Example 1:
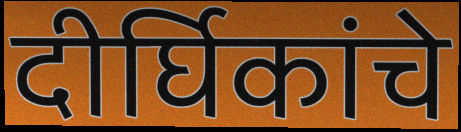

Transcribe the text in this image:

दीर्घिकांचे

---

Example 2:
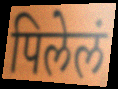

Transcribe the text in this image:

पिलेलं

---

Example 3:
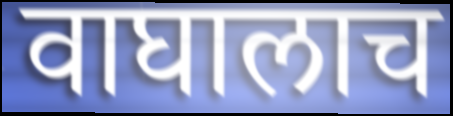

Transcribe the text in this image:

वाघालाच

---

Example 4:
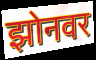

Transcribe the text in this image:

झोनवर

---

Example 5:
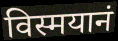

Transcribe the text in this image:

विस्मयानं